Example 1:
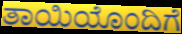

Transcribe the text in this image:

ತಾಯಿಯೊಂದಿಗೆ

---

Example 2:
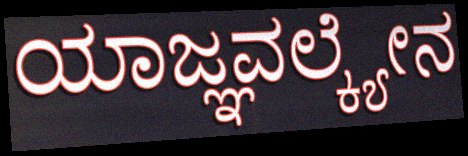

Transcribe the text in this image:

ಯಾಜ್ಞವಲ್ಕ್ಯೇನ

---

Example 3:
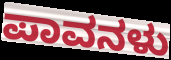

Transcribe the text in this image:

ಪಾವನಳು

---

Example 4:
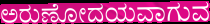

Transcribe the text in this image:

ಅರುಣೋದಯವಾಗುವ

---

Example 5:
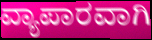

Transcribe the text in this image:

ವ್ಯಾಪಾರವಾಗಿ